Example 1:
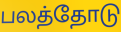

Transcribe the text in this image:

பலத்தோடு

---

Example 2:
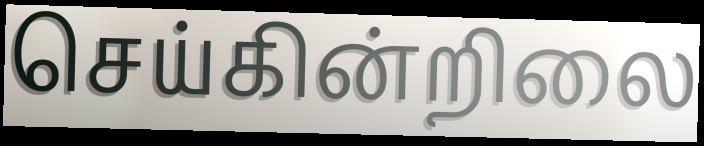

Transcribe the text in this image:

செய்கின்றிலை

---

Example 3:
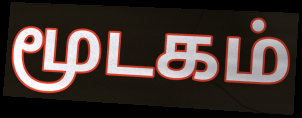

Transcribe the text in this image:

மூடகம்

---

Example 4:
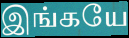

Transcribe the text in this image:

இங்கயே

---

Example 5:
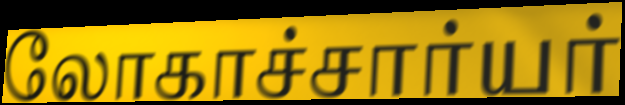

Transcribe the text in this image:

லோகாச்சார்யர்